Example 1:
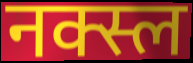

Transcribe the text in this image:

नक्स्ल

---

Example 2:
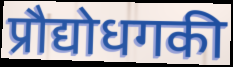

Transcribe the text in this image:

प्रौद्योधगकी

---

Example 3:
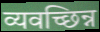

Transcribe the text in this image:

व्यवच्छिन्न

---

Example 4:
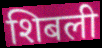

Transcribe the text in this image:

शिबली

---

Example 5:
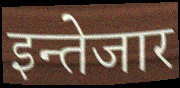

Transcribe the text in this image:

इन्तेजार